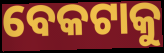
ବେକଟାକୁ